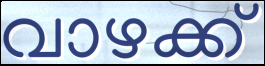
വാഴക്ക്